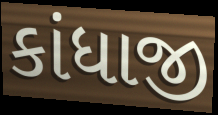
કાંધાજી